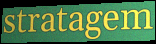
stratagem